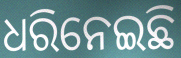
ଧରିନେଇଛି